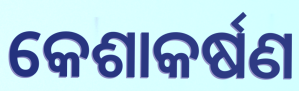
କେଶାକର୍ଷଣ